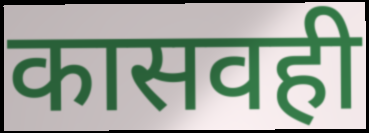
कासवही